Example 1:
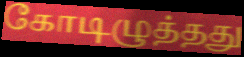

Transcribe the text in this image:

கோடிழுத்தது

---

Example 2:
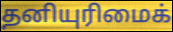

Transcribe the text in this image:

தனியுரிமைக்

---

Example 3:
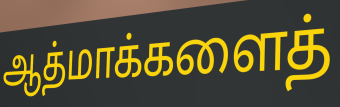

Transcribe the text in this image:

ஆத்மாக்களைத்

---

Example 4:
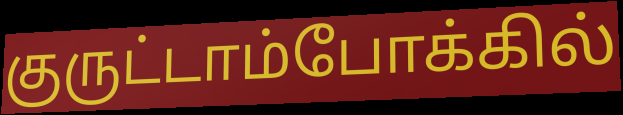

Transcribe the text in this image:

குருட்டாம்போக்கில்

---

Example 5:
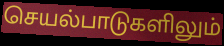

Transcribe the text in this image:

செயல்பாடுகளிலும்